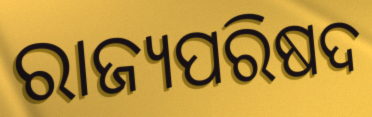
ରାଜ୍ୟପରିଷଦ